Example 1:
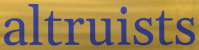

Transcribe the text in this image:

altruists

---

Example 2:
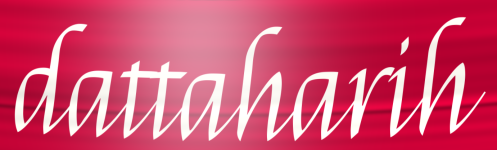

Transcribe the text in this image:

dattaharih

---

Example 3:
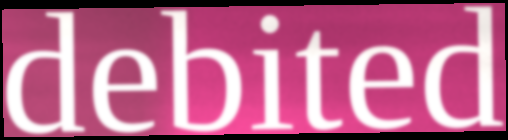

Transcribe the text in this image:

debited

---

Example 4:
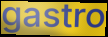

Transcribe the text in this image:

gastro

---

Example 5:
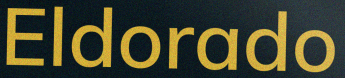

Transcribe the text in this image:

Eldorado